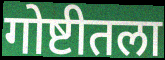
गोष्टीतला